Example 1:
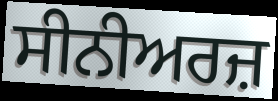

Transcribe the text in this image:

ਸੀਨੀਅਰਜ਼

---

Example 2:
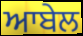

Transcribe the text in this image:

ਆਬੇਲ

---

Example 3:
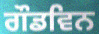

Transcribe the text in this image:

ਗੌਡਵਿਨ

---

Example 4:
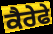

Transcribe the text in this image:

ਕੈਰੇਫੇ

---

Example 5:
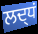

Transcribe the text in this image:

ਲਦ੍ਧਂ